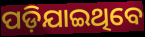
ପଡ଼ିଯାଇଥିବେ